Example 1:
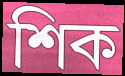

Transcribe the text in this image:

শিক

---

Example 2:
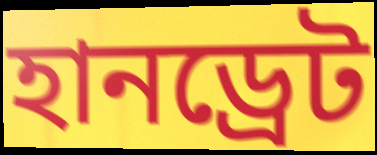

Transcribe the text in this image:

হানড্রেট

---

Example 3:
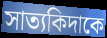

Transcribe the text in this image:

সাত্যকিদাকে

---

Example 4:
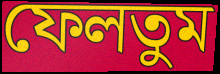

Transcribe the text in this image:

ফেলতুম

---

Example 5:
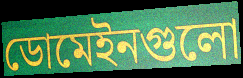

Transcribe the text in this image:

ডোমেইনগুলো